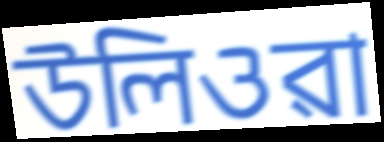
উলিওৱা